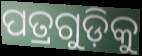
ପତ୍ରଗୁଡ଼ିକୁ